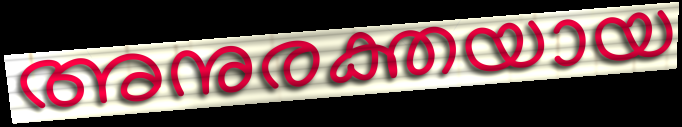
അനുരക്തയായ